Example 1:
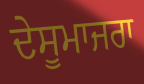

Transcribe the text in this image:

ਦੇਸੂਮਾਜਰਾ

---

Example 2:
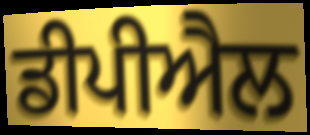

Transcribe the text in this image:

ਡੀਪੀਐਲ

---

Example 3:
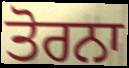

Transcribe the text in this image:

ਤੋਰਨਾ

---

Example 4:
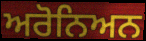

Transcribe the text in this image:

ਅਰੋਨਿਅਨ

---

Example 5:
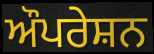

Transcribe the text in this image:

ਔਪਰੇਸ਼ਨ